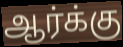
ஆர்க்கு